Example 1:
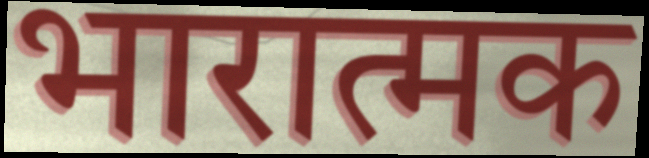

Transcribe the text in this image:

भारात्मक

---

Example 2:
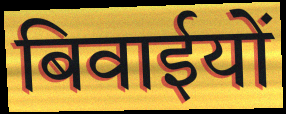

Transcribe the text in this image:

बिवाईयों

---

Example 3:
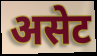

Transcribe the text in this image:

असेट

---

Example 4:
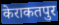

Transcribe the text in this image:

केराकतपुर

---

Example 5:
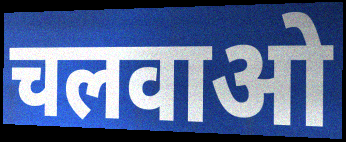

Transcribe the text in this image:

चलवाओ